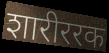
शारीररक